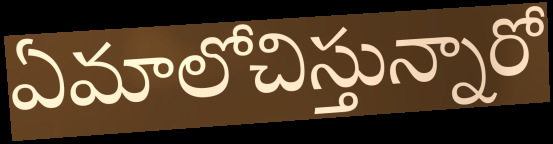
ఏమాలోచిస్తున్నారో